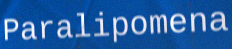
Paralipomena